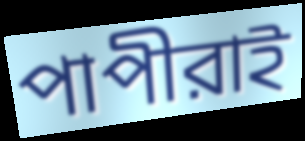
পাপীরাই